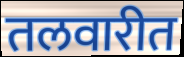
तलवारीत